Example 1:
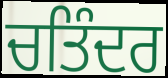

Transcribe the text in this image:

ਚਤਿੰਦਰ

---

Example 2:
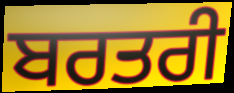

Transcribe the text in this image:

ਬਰਤਰੀ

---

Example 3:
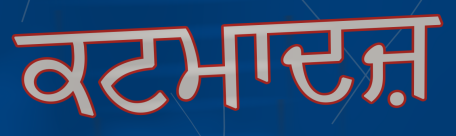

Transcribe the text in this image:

ਕਟਮਾਦਜ਼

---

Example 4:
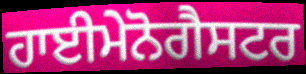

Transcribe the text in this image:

ਹਾਈਮੇਨੋਗੈਸਟਰ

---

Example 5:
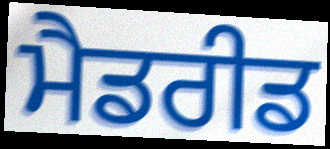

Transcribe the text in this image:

ਮੈਡਰੀਡ